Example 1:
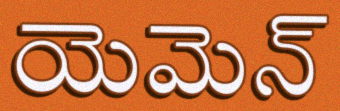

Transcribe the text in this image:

యెమెన్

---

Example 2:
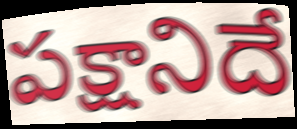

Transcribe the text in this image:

పక్షానిదే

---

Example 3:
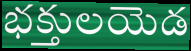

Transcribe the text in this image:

భక్తులయెడ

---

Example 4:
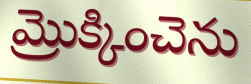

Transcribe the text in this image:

మ్రొక్కించెను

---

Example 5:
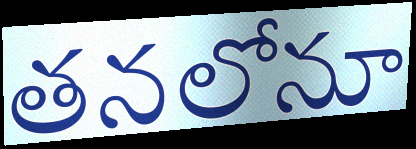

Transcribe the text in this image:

తనలోనూ